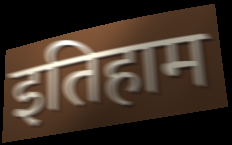
इतिहाम